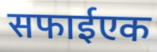
सफाईएक